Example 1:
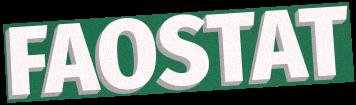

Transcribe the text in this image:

FAOSTAT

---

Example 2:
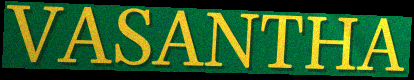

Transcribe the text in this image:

VASANTHA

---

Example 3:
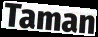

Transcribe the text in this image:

Taman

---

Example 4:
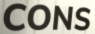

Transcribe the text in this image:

CONS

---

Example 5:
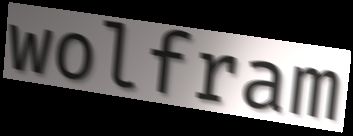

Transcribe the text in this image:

wolfram